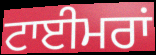
ਟਾਈਮਰਾਂ